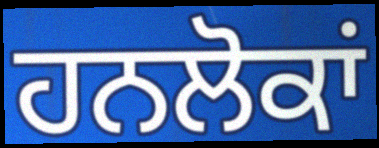
ਹਨਲੋਕਾਂ